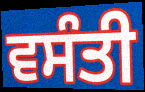
ਵਸੰਤੀ